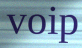
voip